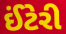
ઈંટેરી